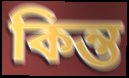
কিন্ত